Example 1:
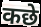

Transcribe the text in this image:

कछे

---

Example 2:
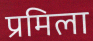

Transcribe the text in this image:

प्रमिला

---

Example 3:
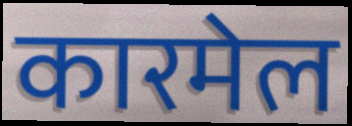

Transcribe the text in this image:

कारमेल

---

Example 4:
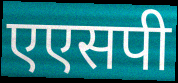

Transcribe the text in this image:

एएसपी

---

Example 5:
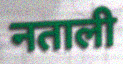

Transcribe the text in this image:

नताली